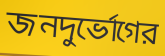
জনদুর্ভোগের